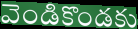
వెండికొండకు